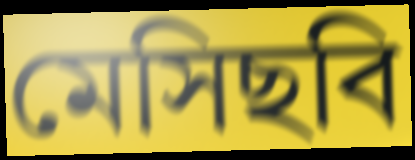
মেসিছবি